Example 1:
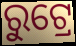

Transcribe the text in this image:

ରୁଟ୍ରେ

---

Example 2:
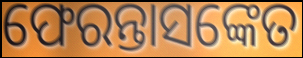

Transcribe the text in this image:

ଫେରନ୍ତାସଙ୍କେତ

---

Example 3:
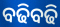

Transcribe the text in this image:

ବଢିବଢି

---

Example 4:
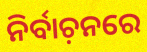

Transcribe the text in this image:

ନିର୍ବାଚ଼ନରେ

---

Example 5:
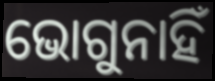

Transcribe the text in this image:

ଭୋଗୁନାହିଁ